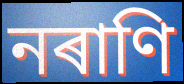
নৰাণি